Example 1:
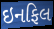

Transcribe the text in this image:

ઇનફિલ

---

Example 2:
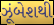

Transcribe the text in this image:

ઝૂંબેશથી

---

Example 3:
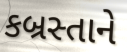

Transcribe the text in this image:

કબ્રસ્તાને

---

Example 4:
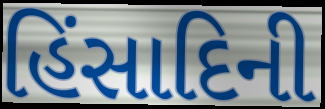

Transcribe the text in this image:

હિંસાદિની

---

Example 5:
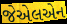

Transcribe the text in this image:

જેએલએન